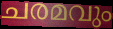
ചരമവും